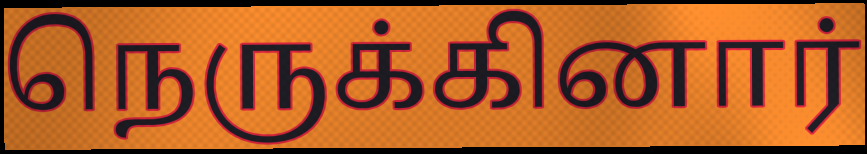
நெருக்கினார்